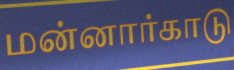
மன்னார்காடு